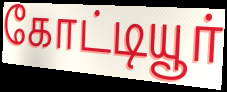
கோட்டியூர்